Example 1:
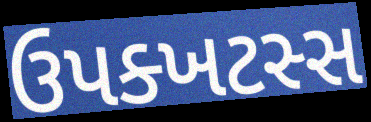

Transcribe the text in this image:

ઉપક્ખટસ્સ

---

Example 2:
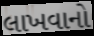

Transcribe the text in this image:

લાખવાનો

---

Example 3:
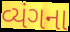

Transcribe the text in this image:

વ્યંગના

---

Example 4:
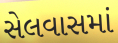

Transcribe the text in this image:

સેલવાસમાં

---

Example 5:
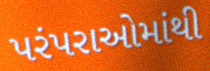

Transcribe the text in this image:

પરંપરાઓમાંથી